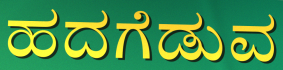
ಹದಗೆಡುವ